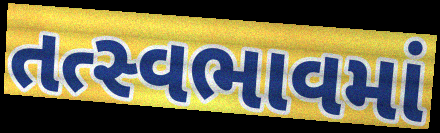
તત્સ્વભાવમાં